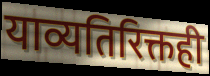
याव्यतिरिक्तही